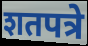
शतपत्रे